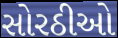
સોરઠીઓ